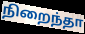
நிறைந்தா